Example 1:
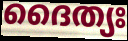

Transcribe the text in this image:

ദൈത്യഃ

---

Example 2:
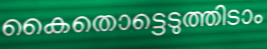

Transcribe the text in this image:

കൈതൊട്ടെടുത്തിടാം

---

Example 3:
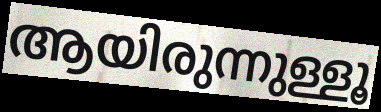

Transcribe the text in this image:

ആയിരുന്നുള്ളൂ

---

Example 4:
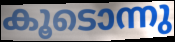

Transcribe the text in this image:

കൂടൊന്നു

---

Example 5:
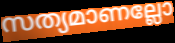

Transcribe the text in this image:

സത്യമാണല്ലോ